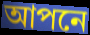
আপনে